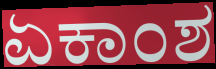
ಏಕಾಂಶ